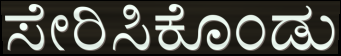
ಸೇರಿಸಿಕೊಂಡು